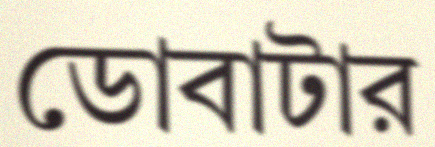
ডোবাটার